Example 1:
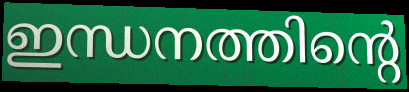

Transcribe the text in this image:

ഇന്ധനത്തിന്റെ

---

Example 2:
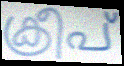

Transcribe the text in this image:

ക്രീപ്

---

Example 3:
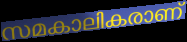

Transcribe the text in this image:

സമകാലികരാണ്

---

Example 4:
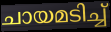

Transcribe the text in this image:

ചായമടിച്ച്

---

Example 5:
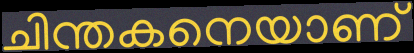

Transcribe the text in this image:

ചിന്തകനെയാണ്